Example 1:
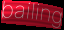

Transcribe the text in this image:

bailing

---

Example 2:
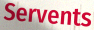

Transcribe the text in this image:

Servents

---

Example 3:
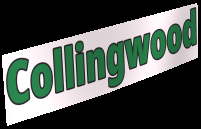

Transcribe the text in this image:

Collingwood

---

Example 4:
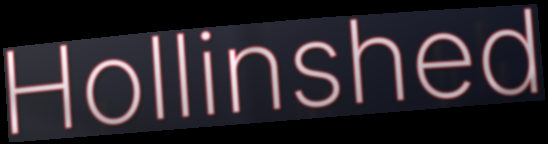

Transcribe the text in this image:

Hollinshed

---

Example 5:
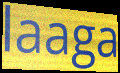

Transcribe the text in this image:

laaga